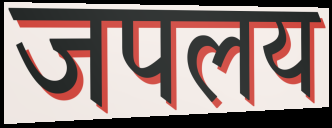
जपलय